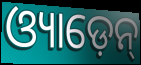
ଓ୍ୟାଡ଼େନ୍